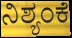
ನಿಶ್ಯಂಕೆ